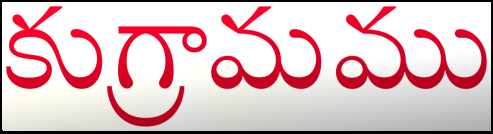
కుగ్రామము